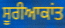
ਸੂਰੀਆਕਾਂਤ